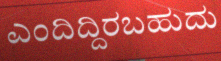
ಎಂದಿದ್ದಿರಬಹುದು